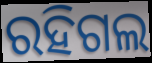
ରହିଗଲ